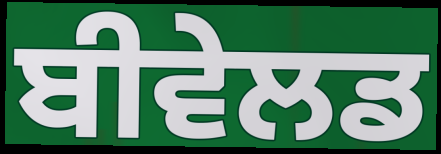
ਬੀਵੇਲਡ